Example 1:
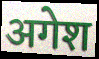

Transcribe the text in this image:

अगेश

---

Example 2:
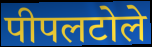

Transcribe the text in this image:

पीपलटोले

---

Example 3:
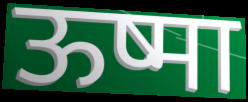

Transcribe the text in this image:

ऊष्‍मा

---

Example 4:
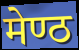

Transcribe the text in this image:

मेण्ठ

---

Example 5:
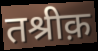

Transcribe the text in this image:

तश्रीक़